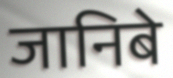
जानिबे